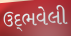
ઉદ્‌ભવેલી